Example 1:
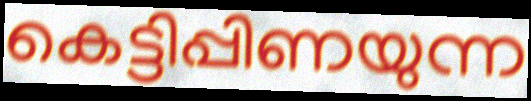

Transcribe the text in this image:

കെട്ടിപ്പിണയുന്ന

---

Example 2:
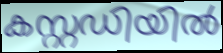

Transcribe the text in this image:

കസ്റ്റഡിയിൽ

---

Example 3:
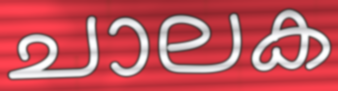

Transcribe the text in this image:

ചാലക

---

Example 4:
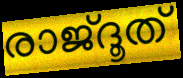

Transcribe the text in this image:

രാജ്ദൂത്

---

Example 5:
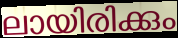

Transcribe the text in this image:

ലായിരിക്കും